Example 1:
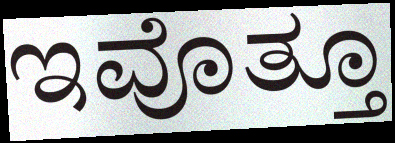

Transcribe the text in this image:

ಇವೊತ್ತೂ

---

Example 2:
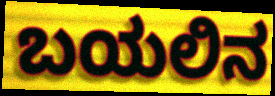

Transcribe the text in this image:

ಬಯಲಿನ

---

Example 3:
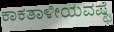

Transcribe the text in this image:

ಕಾಕತಾಳೀಯವಷ್ಟೆ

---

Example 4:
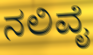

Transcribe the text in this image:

ನಲಿವೈ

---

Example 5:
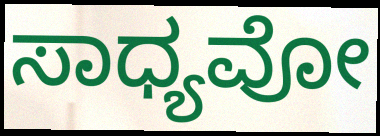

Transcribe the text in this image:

ಸಾಧ್ಯವೋ